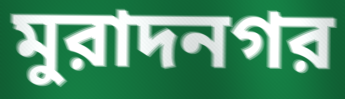
মুরাদনগর